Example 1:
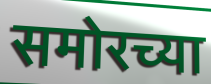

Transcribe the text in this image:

समोरच्या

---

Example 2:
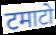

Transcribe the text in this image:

टमाटो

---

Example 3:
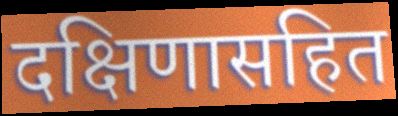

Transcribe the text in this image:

दक्षिणासहित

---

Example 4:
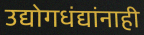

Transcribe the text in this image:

उद्योगधंद्यांनाही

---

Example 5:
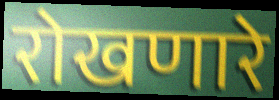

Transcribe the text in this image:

रोखणारे